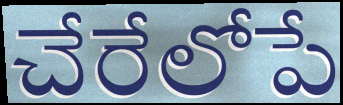
చేరేలోపే